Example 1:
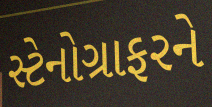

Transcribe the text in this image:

સ્ટેનોગ્રાફરને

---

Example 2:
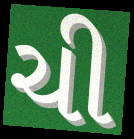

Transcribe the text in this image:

ચી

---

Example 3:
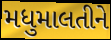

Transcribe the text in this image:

મધુમાલતીને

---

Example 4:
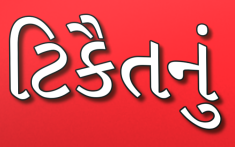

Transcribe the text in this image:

ટિકૈતનું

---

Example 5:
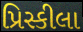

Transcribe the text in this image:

પ્રિસ્કીલા